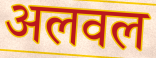
अलवल